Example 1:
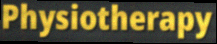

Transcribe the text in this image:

Physiotherapy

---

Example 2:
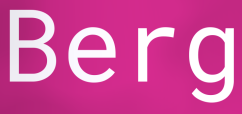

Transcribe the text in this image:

Berg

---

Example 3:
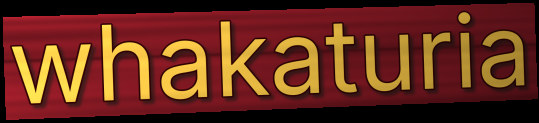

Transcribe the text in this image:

whakaturia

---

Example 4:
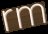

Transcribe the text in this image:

rm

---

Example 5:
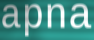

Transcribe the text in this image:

apna